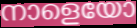
നാളെയോ